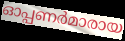
ഓപ്പണർമാരായ